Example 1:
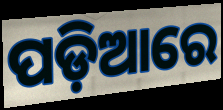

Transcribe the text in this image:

ପଡ଼ିଆରେ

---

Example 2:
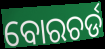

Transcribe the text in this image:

ବୋରଚର୍ଡ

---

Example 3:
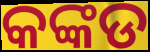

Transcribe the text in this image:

କଙ୍କଡ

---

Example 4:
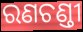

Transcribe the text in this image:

ରଣଚଣ୍ଡୀ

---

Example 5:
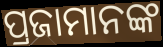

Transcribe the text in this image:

ପ୍ରଜାମାନଙ୍କ